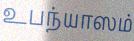
உபந்யாஸம்